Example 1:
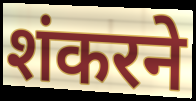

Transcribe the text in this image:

शंकरने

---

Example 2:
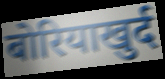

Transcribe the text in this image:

बोरियाखुर्द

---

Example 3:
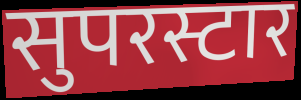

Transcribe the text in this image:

सुपरस्टार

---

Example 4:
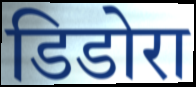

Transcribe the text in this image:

डिडोरा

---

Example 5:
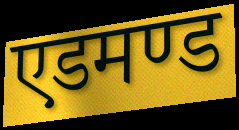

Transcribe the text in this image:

एडमण्ड